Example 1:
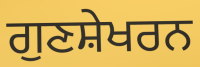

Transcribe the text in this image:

ਗੁਣਸ਼ੇਖਰਨ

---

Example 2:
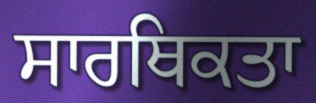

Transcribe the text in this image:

ਸਾਰਥਿਕਤਾ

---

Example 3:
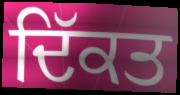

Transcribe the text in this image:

ਦਿੱਕਤ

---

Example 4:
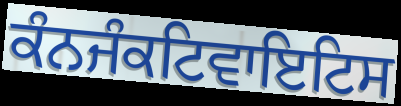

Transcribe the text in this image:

ਕੰਨਜੰਕਟਿਵਾਇਟਿਸ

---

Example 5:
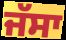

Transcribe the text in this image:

ਜੱਸਾ